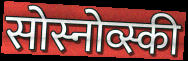
सोस्नोव्स्की